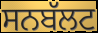
ਸਨਬੱਲਟ